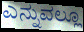
ಎನ್ನುವಲ್ಲೂ